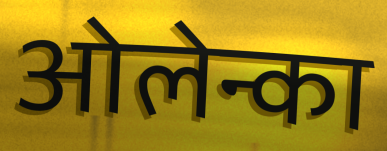
ओलेन्का